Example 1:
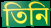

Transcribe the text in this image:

তিনি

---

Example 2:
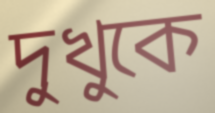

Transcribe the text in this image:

দুখুকে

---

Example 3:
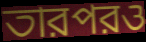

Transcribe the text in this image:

তারপরও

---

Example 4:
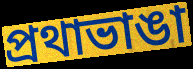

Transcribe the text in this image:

প্রথাভাঙা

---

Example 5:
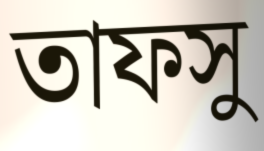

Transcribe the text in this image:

তাফসু